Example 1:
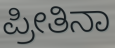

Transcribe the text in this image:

ಪ್ರೀತಿನಾ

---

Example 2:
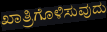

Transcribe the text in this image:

ಖಾತ್ರಿಗೊಳಿಸುವುದು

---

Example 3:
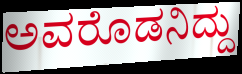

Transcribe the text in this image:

ಅವರೊಡನಿದ್ದು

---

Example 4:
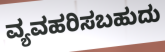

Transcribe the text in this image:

ವ್ಯವಹರಿಸಬಹುದು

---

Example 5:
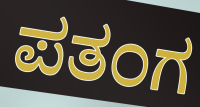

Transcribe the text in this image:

ಪತಂಗ